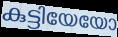
കുട്ടിയേയോ